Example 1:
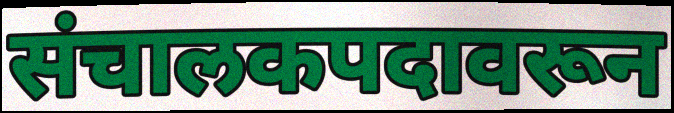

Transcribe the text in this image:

संचालकपदावरून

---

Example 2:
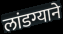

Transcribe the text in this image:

लांडग्याने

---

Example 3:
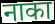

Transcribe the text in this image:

नाका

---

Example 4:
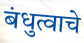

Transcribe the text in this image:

बंधुत्वाचे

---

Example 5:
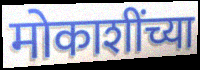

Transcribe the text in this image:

मोकाशींच्या